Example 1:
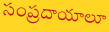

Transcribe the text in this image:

సంప్రదాయాలూ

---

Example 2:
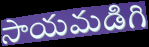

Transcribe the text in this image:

సాయమడిగి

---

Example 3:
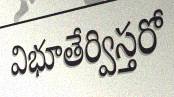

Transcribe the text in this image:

విభూతేర్విస్తరో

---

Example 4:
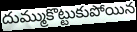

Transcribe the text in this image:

దుమ్ముకొట్టుకుపోయిన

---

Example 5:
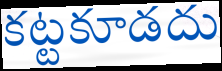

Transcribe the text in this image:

కట్టకూడదు